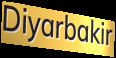
Diyarbakir